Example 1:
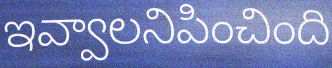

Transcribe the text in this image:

ఇవ్వాలనిపించింది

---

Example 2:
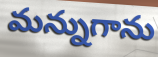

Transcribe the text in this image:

మన్నుగాను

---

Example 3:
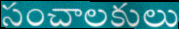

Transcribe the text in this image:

సంచాలకులు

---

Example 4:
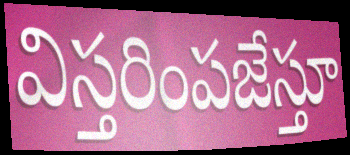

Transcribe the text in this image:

విస్తరింపజేస్తూ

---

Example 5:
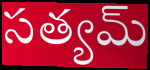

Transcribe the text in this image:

సత్యమ్